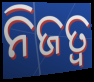
ନିଜତ୍ବ